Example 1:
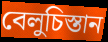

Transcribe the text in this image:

বেলুচিস্তান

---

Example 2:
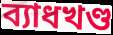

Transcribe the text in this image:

ব্যাধখণ্ড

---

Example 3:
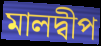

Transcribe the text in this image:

মালদ্বীপ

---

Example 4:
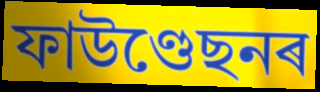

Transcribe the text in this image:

ফাউণ্ডেছনৰ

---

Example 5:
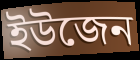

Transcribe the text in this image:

ইউজেন